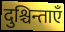
दुश्चिन्ताएँ